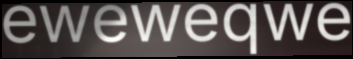
eweweqwe